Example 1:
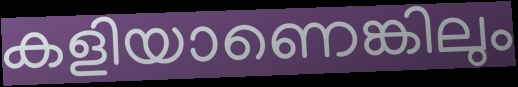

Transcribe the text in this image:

കളിയാണെങ്കിലും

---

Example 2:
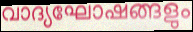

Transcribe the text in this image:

വാദ്യഘോഷങ്ങളും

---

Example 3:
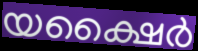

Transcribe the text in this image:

യക്ഷൈർ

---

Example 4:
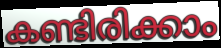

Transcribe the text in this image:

കണ്ടിരിക്കാം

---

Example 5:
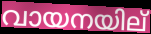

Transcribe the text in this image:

വായനയില്